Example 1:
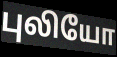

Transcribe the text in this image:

புலியோ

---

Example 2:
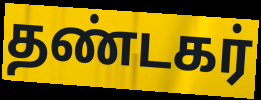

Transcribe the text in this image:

தண்டகர்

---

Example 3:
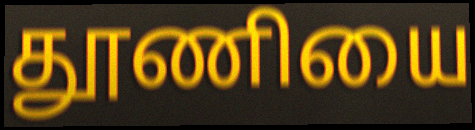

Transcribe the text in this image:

தூணியை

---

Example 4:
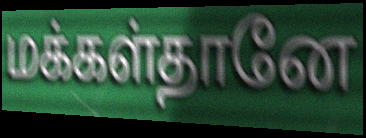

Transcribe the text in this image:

மக்கள்தானே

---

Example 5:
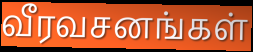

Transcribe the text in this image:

வீரவசனங்கள்